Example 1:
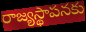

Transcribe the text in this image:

రాజ్యస్థాపనకు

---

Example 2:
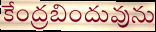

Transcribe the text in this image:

కేంద్రబిందువును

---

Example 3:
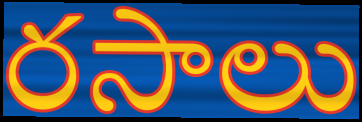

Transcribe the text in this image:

రసాలు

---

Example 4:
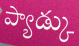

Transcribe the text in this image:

ప్యాడ్కు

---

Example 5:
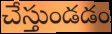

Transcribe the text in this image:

చేస్తుండడం